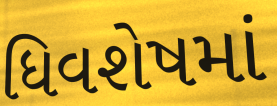
ધિવશેષમાં